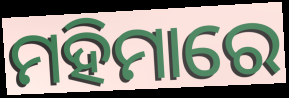
ମହିମାରେ